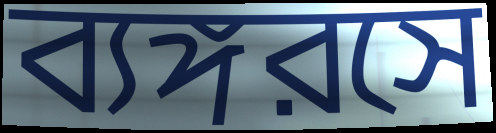
ব্যঙ্গরসে